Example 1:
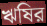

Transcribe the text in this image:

ঋষির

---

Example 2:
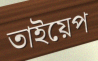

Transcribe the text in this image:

তাইয়েপ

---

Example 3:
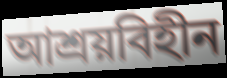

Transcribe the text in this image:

আশ্রয়বিহীন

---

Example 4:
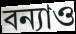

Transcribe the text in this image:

বন্যাও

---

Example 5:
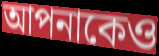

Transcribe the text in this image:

আপনাকেও